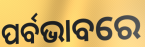
ପର୍ବଭାବରେ